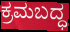
ಕ್ರಮಬದ್ಧ